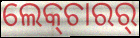
ଲେକ୍‍ଚାରର୍